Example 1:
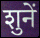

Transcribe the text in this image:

शुनें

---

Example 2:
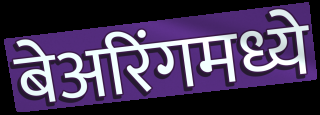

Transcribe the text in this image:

बेअरिंगमध्ये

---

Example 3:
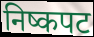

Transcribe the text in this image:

निष्कपट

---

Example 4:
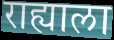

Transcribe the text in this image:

राह्याला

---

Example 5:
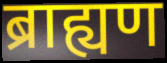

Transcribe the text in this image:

ब्राह्यण